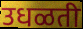
उधळती